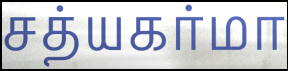
சத்யகர்மா